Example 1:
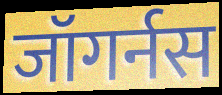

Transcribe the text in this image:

जॉगर्नस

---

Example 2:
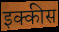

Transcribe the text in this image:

इक्कीस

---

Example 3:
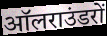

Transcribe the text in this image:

ऑलराउंडरों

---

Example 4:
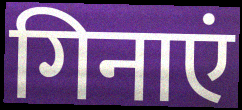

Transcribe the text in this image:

गिनाएं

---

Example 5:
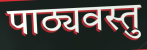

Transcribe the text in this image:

पाठ्यवस्तु